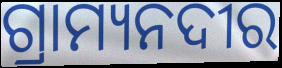
ଗ୍ରାମ୍ୟନଦୀର